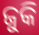
ଜୁକି